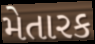
મેતારક